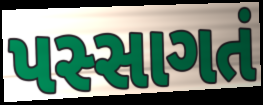
પસ્સાગતં